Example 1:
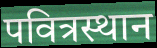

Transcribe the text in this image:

पवित्रस्‍थान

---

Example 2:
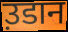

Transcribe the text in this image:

उ़डान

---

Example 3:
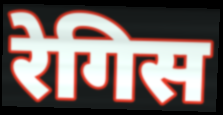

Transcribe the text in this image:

रेगिस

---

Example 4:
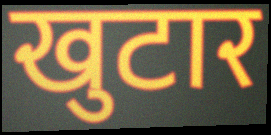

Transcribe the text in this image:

खुटार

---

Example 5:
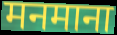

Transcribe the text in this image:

मनमाना